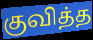
குவித்த